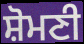
ਸ਼ੋਮਣੀ